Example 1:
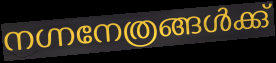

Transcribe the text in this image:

നഗ്നനേത്രങ്ങൾക്കു്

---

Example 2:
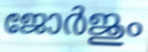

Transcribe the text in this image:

ജോർജും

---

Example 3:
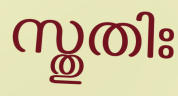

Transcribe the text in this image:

സ്തുതിഃ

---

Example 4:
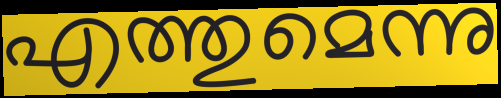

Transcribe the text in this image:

എത്തുമെന്നു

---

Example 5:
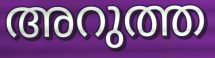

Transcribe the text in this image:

അറുത്ത